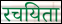
रचयिता